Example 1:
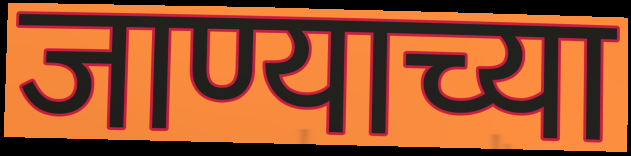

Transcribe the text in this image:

जाण्याच्या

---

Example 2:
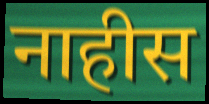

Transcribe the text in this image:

नाहीस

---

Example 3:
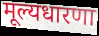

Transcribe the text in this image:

मूल्यधारणा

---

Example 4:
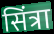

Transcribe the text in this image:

सिंत्रा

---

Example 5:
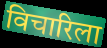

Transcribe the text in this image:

विचारिला